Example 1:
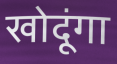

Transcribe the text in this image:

खोदूंगा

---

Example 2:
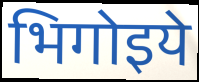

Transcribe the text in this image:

भिगोइये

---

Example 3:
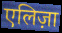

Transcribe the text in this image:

एलिज़ा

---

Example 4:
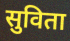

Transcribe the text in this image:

सुविता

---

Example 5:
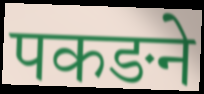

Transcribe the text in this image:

पकङने